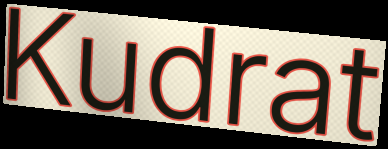
Kudrat